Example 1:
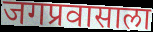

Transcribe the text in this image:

जगप्रवासाला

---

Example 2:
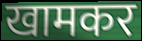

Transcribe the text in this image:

खामकर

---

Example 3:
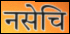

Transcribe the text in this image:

नसेचि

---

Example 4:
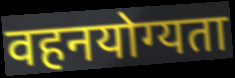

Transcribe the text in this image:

वहनयोग्यता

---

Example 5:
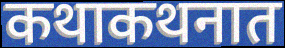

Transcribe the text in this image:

कथाकथनात